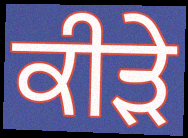
ਕੀੜੇ